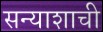
सन्याशाची